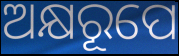
ଅକ୍ଷରୂପେ